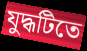
যুদ্ধটিতে